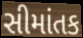
સીમાંતક